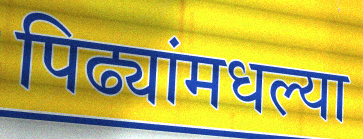
पिढ्यांमधल्या